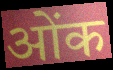
ओंक